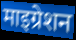
माइग्रेशन